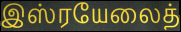
இஸ்ரயேலைத்